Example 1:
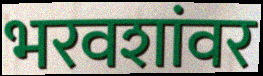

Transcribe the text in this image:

भरवशांवर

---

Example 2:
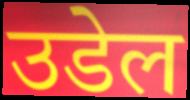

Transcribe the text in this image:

उडेल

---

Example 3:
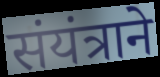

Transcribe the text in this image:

संयंत्राने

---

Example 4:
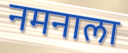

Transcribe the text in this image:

नमनाला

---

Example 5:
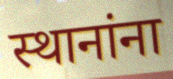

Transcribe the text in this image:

स्थानांना